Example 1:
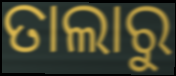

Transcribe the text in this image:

ତାଲାରୁ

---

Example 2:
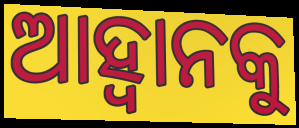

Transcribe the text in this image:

ଆହ୍ବାନକୁ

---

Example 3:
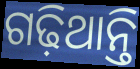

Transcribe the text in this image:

ଗଢ଼ିଥାନ୍ତି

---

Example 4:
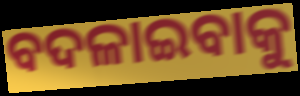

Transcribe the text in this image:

ବଦଳାଇବାକୁ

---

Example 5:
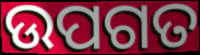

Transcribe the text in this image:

ଉପଗତ